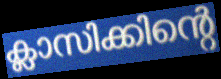
ക്ലാസിക്കിന്റെ